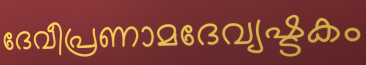
ദേവീപ്രണാമദേവ്യഷ്ടകം